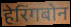
हेरिंगबोन